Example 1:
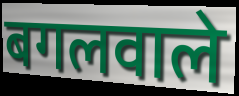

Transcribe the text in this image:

बगलवाले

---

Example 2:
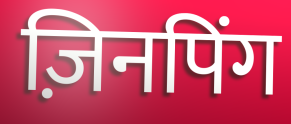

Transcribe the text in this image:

ज़िनपिंग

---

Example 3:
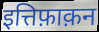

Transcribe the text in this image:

इत्तिफ़ाक़न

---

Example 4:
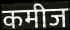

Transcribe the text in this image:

कमीज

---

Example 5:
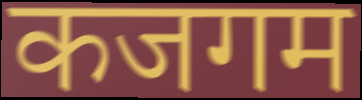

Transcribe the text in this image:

कजगम